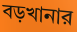
বড়খানার